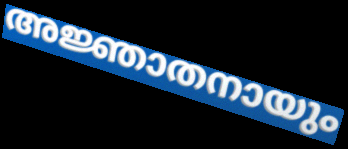
അജ്ഞാതനായും